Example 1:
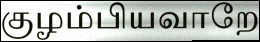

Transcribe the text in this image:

குழம்பியவாறே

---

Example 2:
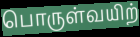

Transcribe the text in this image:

பொருள்வயிற்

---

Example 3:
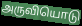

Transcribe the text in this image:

அருவியொடு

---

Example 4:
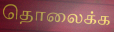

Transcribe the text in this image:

தொலைக்க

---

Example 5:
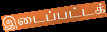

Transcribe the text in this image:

இடைப்பட்டக்